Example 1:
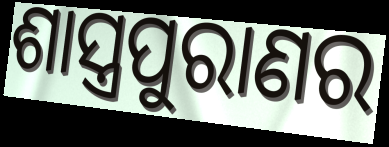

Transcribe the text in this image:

ଶାସ୍ତ୍ରପୁରାଣର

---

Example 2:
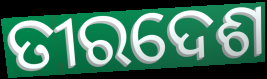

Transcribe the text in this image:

ତୀରଦେଶ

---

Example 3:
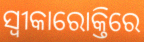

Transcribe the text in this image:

ସ୍ଵୀକାରୋକ୍ତିରେ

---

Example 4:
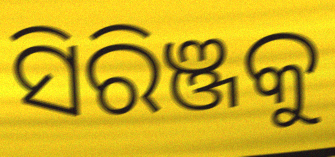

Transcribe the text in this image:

ସିରିଞ୍ଜକୁ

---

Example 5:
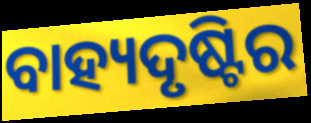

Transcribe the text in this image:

ବାହ୍ୟଦୃଷ୍ଟିର